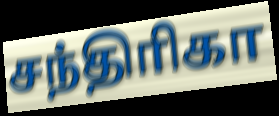
சந்திரிகா